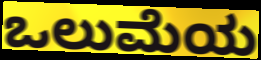
ಒಲುಮೆಯ